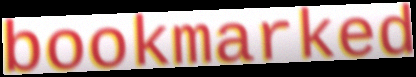
bookmarked